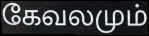
கேவலமும்